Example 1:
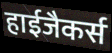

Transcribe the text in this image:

हाईजैकर्स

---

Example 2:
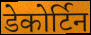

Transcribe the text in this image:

डेकोर्टिन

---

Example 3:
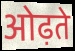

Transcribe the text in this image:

ओढ़ते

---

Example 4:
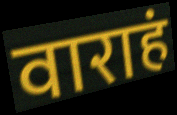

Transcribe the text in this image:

वाराहं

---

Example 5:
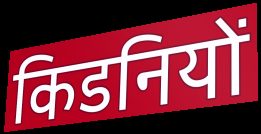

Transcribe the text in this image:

किडनियों